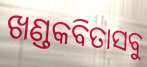
ଖଣ୍ଡକବିତାସବୁ